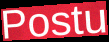
Postu